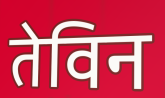
तेविन